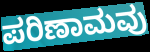
ಪರಿಣಾಮವು